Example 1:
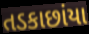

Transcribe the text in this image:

તડકાછાંયા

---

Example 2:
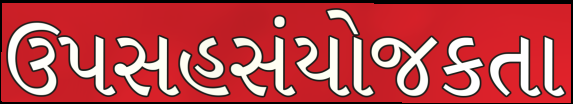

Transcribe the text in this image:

ઉપસહસંયોજકતા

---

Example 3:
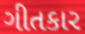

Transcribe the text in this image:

ગીતકાર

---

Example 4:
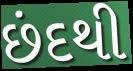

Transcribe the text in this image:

છંદથી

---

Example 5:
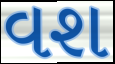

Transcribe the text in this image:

વશ